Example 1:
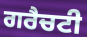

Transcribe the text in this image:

ਗਰੈਚਟੀ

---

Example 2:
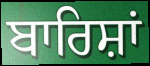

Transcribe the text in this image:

ਬਾਰਿਸ਼ਾਂ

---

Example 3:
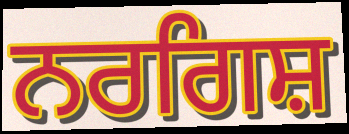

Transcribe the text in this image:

ਨਰਗਿਸ਼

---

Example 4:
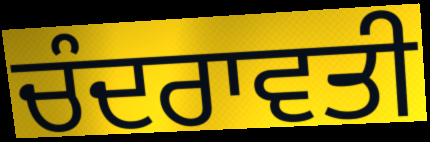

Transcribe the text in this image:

ਚੰਦਰਾਵਤੀ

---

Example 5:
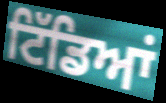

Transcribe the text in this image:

ਟਿੱਡਿਆਂ